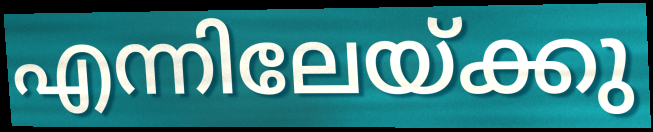
എന്നിലേയ്ക്കു